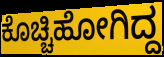
ಕೊಚ್ಚಿಹೋಗಿದ್ದ